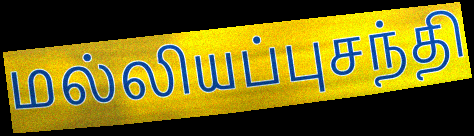
மல்லியப்புசந்தி